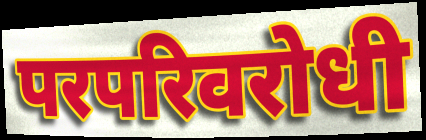
परपरिवरोधी